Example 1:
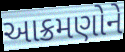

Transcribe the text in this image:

આક્રમણોને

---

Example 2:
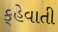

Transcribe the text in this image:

ક્‌હેવાતી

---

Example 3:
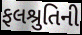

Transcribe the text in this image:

ફલશ્રુતિની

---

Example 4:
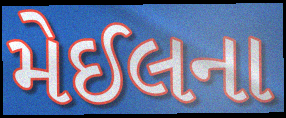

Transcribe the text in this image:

મેઈલના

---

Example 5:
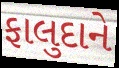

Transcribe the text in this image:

ફાલુદાને